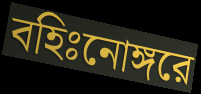
বহিঃনোঙ্গরে